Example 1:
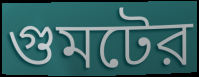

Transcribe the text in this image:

গুমটের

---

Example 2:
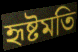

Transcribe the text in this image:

হৃষ্টমতি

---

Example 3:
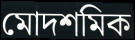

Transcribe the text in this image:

মোদশমিক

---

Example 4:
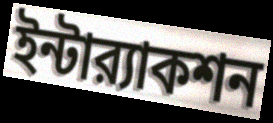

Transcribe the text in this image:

ইন্টার‍্যাকশন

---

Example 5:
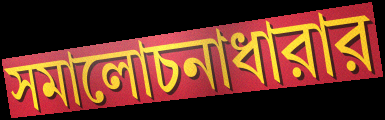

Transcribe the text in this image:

সমালোচনাধারার